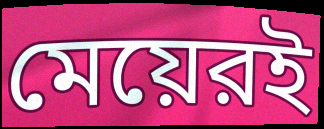
মেয়েরই